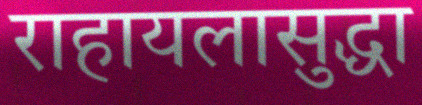
राहायलासुद्धा